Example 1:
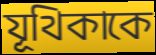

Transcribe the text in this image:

যূথিকাকে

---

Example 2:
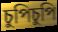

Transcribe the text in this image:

চুপিচুপি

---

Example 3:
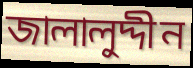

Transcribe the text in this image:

জালালুদ্দীন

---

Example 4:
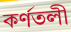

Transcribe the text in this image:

কর্ণতলী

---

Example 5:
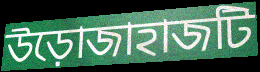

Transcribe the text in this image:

উড়োজাহাজটি